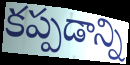
కప్పడాన్ని